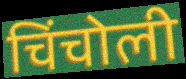
चिंचोली